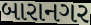
બારાનગર